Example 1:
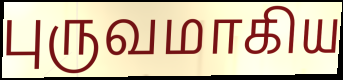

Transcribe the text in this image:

புருவமாகிய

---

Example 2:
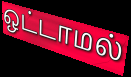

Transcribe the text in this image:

ஒட்டாமல்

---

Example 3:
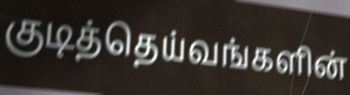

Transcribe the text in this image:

குடித்தெய்வங்களின்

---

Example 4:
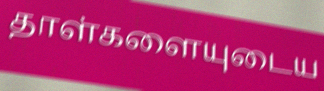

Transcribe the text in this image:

தாள்களையுடைய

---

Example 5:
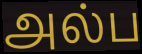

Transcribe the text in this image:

அல்ப